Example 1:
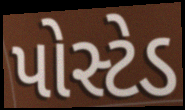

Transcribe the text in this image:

પોસ્ટેડ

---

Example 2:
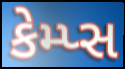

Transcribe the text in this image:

કેમ્પ્સ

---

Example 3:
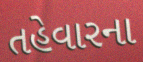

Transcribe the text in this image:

તહેવારના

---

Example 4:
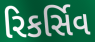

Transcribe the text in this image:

રિકર્સિવ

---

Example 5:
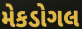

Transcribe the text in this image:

મેકડોગલ